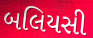
બલિયસી